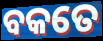
ବକତେ